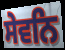
ਸੇਵਨਿ